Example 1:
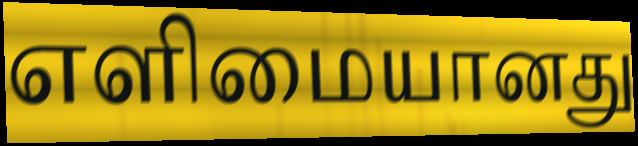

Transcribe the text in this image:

எளிமையானது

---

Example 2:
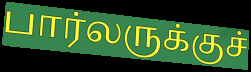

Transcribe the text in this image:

பார்லருக்குச்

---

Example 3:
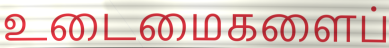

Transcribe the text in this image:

உடைமைகளைப்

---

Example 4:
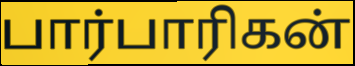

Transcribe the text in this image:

பார்பாரிகன்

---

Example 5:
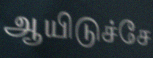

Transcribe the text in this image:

ஆயிடுச்சே